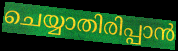
ചെയ്യാതിരിപ്പാൻ